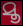
മൂ